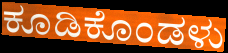
ಕೂಡಿಕೊಂಡಳು